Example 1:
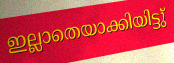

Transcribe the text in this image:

ഇല്ലാതെയാക്കിയിട്ടു്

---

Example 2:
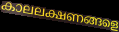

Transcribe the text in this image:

കാലലക്ഷണങ്ങളെ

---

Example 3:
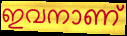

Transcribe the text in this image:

ഇവനാണ്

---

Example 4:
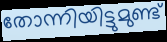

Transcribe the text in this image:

തോന്നിയിട്ടുമുണ്ട്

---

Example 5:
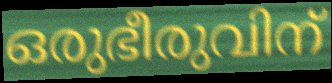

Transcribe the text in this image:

ഒരുഭീരുവിന്